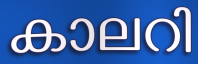
കാലറി